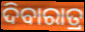
ଦିବାରାତ୍ର